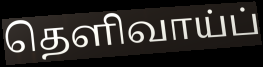
தெளிவாய்ப்